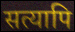
सत्यापि